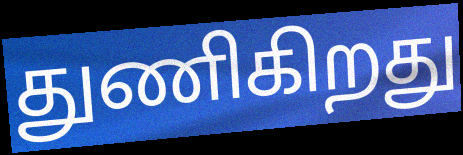
துணிகிறது